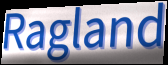
Ragland